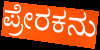
ಪ್ರೇರಕನು